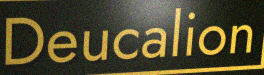
Deucalion